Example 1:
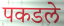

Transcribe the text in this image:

पकडले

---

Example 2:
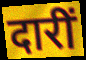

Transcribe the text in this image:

दारीं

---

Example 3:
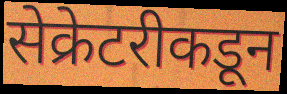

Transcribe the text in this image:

सेक्रेटरीकडून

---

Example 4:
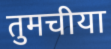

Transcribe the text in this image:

तुमचीया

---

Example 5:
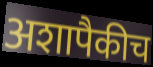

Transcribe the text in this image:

अशापैकीच